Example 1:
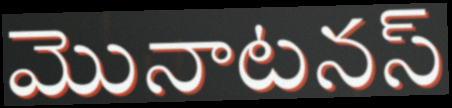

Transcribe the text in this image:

మొనాటనస్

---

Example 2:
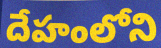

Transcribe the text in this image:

దేహంలోని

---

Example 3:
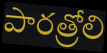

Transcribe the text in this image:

పారత్రోలి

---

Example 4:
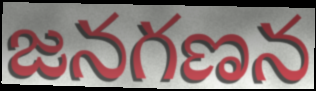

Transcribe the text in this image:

జనగణన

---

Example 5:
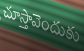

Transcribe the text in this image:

చూస్తావెందుకు